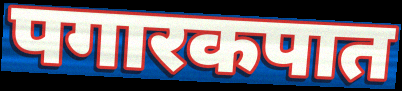
पगारकपात